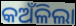
କଅଁଳିଲା